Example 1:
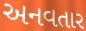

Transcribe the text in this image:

અનવતાર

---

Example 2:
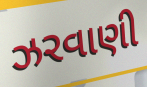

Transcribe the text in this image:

ઝરવાણી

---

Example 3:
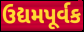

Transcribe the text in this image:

ઉદ્યમપૂર્વક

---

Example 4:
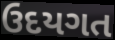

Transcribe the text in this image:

ઉદયગત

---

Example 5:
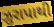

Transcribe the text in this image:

ઝુરાપાથી